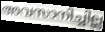
അവസാനിച്ചില്ല